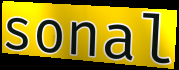
sonal